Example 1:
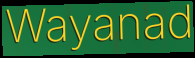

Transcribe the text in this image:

Wayanad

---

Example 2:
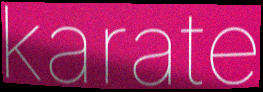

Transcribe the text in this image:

karate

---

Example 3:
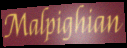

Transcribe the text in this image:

Malpighian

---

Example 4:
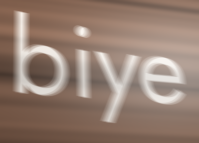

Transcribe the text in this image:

biye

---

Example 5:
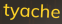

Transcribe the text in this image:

tyache